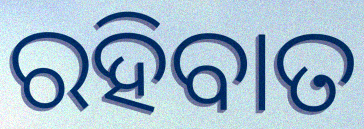
ରହିବାତ